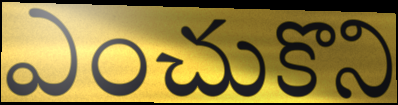
ఎంచుకొని